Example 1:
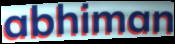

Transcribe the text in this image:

abhiman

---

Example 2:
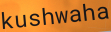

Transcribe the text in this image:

kushwaha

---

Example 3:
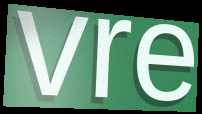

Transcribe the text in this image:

vre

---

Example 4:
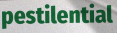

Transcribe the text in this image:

pestilential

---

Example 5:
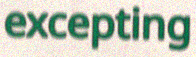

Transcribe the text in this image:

excepting